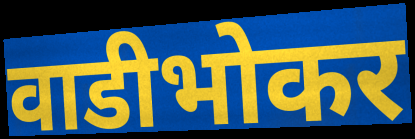
वाडीभोकर